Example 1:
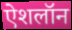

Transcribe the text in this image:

ऐशलॉन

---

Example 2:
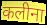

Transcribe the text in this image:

कलीना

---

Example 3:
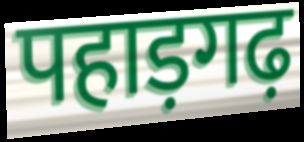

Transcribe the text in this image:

पहाड़गढ़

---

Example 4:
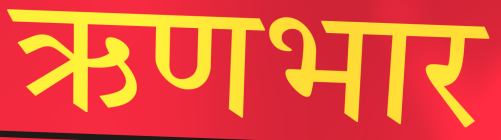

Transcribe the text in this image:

ऋणभार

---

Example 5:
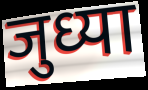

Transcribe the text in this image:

जुध्या